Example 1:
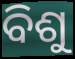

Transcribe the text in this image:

ବିଶୁ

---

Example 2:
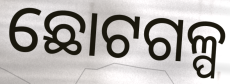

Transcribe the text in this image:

ଛୋଟଗଳ୍ପ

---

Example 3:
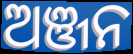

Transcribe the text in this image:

ଅଞ୍ଜନ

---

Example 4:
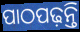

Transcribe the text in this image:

ପାଠପଢ଼ନ୍ତି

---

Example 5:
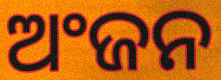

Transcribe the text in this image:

ଅଂଜନ